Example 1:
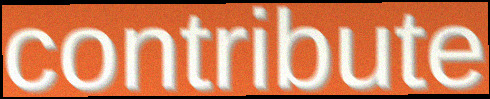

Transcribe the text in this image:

contribute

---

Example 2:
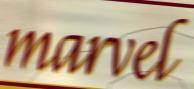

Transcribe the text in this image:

marvel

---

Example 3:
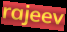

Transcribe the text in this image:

rajeev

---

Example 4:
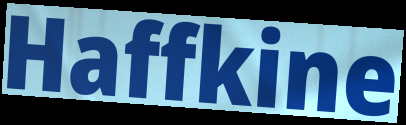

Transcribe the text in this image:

Haffkine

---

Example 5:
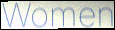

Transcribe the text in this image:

Women